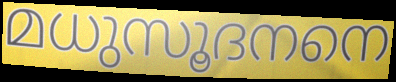
മധുസൂദനനെ